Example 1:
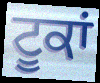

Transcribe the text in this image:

ਟੂਕਾਂ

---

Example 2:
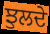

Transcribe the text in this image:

ਝੁਲਦੇ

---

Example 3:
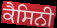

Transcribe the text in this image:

ਕੈਸਿਨੀ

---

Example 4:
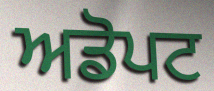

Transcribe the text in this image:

ਅਡੋਪਟ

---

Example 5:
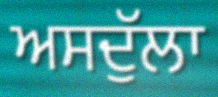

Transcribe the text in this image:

ਅਸਦੁੱਲਾ